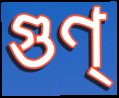
গুণ্